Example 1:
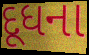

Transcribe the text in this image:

દૂધના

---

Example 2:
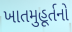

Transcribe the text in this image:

ખાતમુહૂર્તનો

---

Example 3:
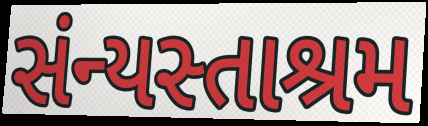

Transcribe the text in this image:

સંન્યસ્તાશ્રમ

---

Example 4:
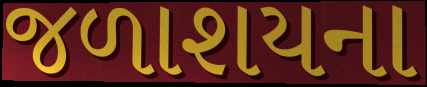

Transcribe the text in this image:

જળાશયના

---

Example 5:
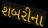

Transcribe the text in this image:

શબરીના